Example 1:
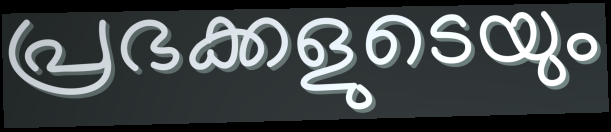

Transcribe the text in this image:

പ്രഭക്കളുടെയും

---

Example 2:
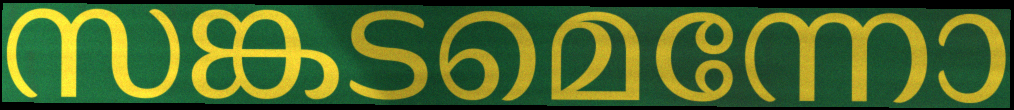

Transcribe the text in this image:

സങ്കടമെന്നോ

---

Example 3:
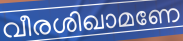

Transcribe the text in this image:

വീരശിഖാമണേ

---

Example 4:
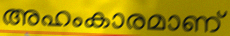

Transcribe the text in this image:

അഹംകാരമാണ്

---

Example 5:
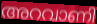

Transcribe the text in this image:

അറവാണി